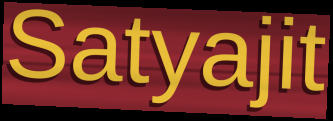
Satyajit